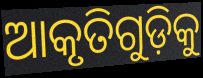
ଆକୃତିଗୁଡ଼ିକୁ